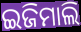
ଇଜିମାଲି